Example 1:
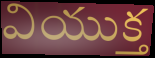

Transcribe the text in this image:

వియుక్త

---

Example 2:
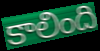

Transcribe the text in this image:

కాలింది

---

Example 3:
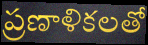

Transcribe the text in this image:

ప్రణాళికలతో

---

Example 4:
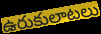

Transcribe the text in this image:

ఉరుకులాటలు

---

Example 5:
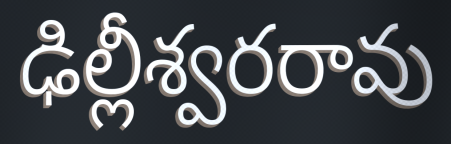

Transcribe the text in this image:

ఢిల్లీశ్వరరావు